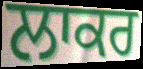
ਲਾਕਰ